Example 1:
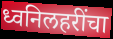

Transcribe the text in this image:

ध्वनिलहरींचा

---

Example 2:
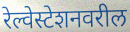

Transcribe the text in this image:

रेल्वेस्टेशनवरील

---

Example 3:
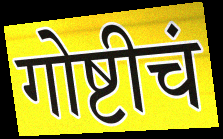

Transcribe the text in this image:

गोष्टीचं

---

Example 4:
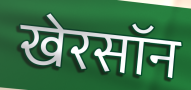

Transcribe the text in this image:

खेरसॉन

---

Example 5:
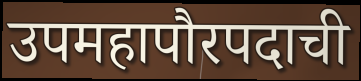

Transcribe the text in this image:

उपमहापौरपदाची